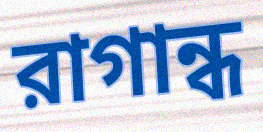
রাগান্ধ